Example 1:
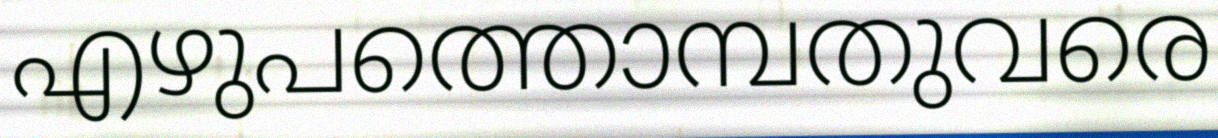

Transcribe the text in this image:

എഴുപത്തൊമ്പതുവരെ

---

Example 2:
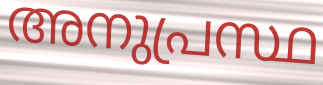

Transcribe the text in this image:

അനുപ്രസ്ഥ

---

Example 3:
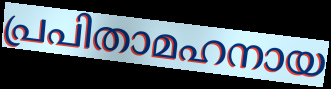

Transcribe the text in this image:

പ്രപിതാമഹനായ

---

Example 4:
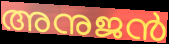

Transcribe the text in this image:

അനുജൻ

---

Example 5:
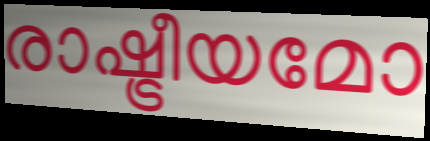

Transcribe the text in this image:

രാഷ്ട്രീയമോ